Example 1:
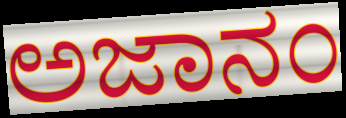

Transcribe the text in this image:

ಅಜಾನಂ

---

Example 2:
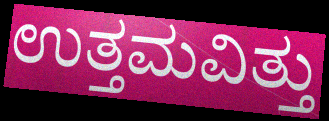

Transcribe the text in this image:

ಉತ್ತಮವಿತ್ತು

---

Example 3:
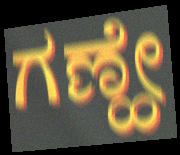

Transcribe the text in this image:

ಗಣ್ಹೇ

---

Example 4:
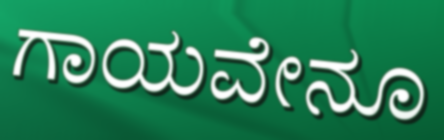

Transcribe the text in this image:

ಗಾಯವೇನೂ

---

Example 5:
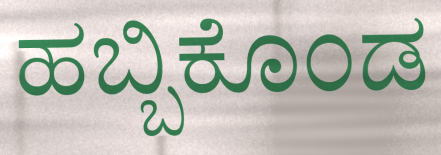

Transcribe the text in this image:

ಹಬ್ಬಿಕೊಂಡ